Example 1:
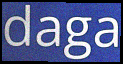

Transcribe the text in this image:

daga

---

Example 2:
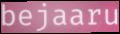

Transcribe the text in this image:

bejaaru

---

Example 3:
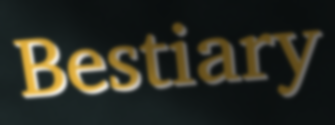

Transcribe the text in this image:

Bestiary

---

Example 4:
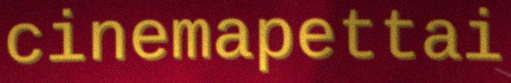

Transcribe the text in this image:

cinemapettai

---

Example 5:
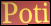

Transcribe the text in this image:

Poti